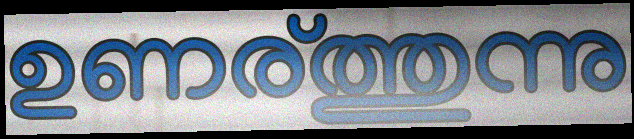
ഉണര്ത്തുന്നു